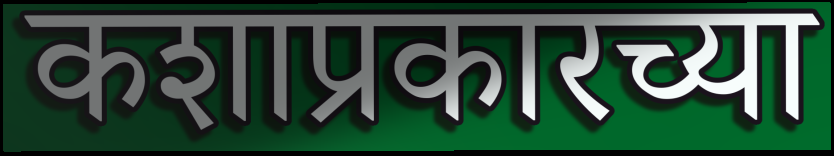
कशाप्रकारच्या